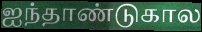
ஐந்தாண்டுகால